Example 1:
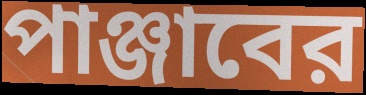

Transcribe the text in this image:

পাঞ্জাবের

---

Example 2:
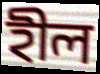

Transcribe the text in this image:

হীল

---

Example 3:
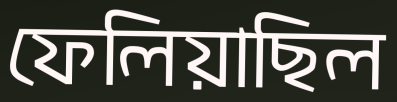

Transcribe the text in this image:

ফেলিয়াছিল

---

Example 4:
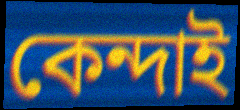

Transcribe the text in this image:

কেন্দাই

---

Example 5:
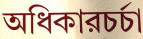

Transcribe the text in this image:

অধিকারচর্চা